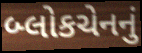
બ્લોકચેનનું